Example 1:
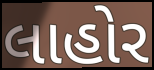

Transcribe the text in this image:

લાહોર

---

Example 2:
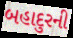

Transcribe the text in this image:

બહાદુરની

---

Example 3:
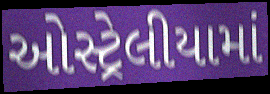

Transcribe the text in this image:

ઓસ્ટ્રેલીયામાં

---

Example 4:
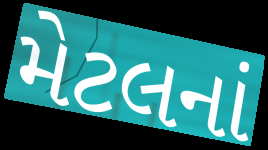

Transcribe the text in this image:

મેટલનાં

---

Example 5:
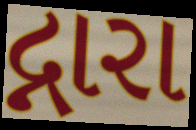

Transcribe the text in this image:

દ્નારા